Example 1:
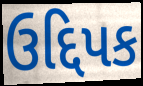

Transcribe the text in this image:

ઉદ્દિપક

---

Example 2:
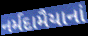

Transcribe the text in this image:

નર્મદામૈયાનાં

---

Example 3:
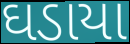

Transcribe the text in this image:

ઘડાયા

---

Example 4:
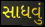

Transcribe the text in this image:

સાધવું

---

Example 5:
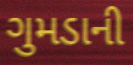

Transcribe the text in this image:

ગુમડાની